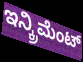
ಇನ್ಕ್ರಿಮೆಂಟ್